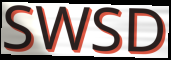
SWSD